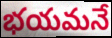
భయమనే